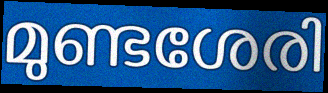
മുണ്ടശേരി